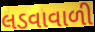
લડવાવાળી